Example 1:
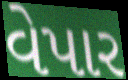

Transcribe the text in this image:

વેપાર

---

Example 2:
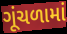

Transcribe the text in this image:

ગૂંચળામાં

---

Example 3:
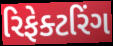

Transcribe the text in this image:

રિફેક્ટરિંગ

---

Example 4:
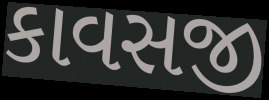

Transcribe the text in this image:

કાવસજી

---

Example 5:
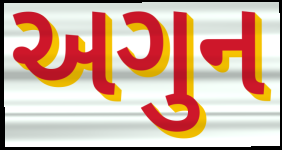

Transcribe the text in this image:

અગુન